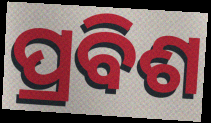
ପ୍ରବିଶ